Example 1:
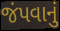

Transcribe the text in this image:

જંપવાનું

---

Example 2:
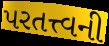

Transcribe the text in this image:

પરતત્ત્વની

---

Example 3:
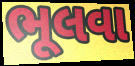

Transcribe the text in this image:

ભૂલવા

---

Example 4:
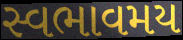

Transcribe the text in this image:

સ્વભાવમય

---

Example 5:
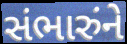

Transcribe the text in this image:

સંભારુંને